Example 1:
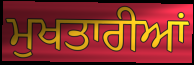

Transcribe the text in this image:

ਮੁਖਤਾਰੀਆਂ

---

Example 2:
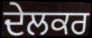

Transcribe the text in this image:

ਦੇਲਕਰ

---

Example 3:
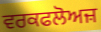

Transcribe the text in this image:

ਵਰਕਫਲੋਅਜ਼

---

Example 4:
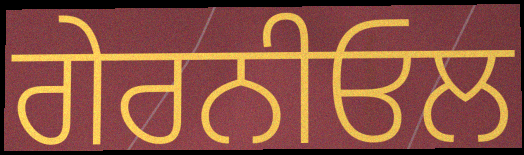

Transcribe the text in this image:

ਗੇਰਨੀਓਲ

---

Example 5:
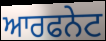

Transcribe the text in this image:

ਆਰਫਨੇਟ